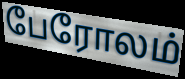
பேரோலம்